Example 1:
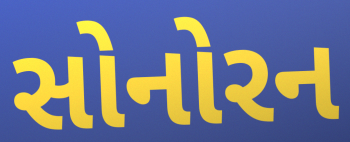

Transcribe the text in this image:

સોનોરન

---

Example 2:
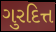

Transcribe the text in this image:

ગુરદિત્ત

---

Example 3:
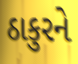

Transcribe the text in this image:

ઠાકુરને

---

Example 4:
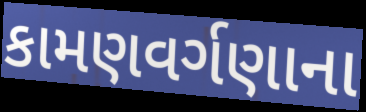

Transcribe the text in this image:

કામણવર્ગણાના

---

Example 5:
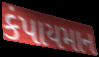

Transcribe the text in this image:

કંપાયમાન